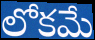
లోకమే